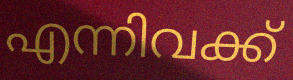
എന്നിവക്ക്